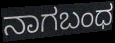
ನಾಗಬಂಧ